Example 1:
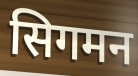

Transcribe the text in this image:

सिगमन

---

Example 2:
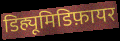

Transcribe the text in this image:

डिह्यूमिडिफ़ायर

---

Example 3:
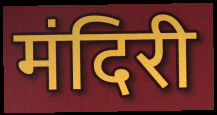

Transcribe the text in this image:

मंदिरी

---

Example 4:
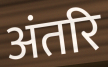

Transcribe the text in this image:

अंतरि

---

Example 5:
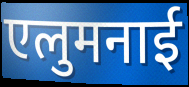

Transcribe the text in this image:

एलुमनाई